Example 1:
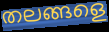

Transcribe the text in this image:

തലങ്ങളെ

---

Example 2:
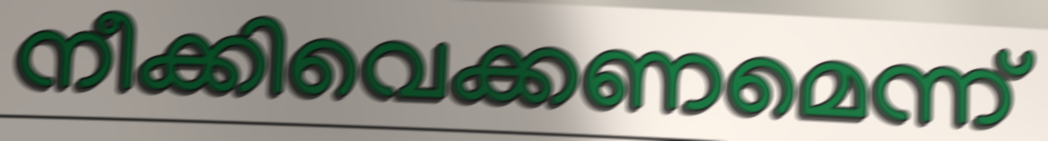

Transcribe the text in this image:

നീക്കിവെക്കണമെന്ന്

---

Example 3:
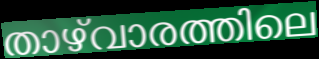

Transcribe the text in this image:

താഴ്‌വാരത്തിലെ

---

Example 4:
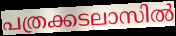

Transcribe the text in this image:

പത്രക്കടലാസിൽ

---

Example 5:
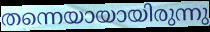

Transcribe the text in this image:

തന്നെയായായിരുന്നു